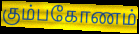
கும்பகோணம்